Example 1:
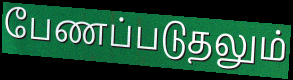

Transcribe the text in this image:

பேணப்படுதலும்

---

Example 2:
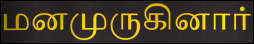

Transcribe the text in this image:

மனமுருகினார்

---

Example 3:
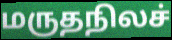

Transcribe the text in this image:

மருதநிலச்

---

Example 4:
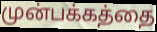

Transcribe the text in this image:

முன்பக்கத்தை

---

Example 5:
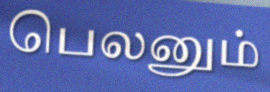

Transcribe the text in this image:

பெலனும்